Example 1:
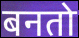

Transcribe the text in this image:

बनतो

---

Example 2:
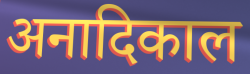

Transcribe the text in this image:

अनादिकाल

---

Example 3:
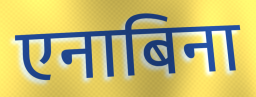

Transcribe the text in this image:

एनाबिना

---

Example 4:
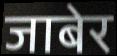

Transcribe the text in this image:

जाबेर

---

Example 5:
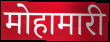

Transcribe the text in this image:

मोहामारी